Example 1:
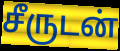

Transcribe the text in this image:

சீருடன்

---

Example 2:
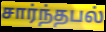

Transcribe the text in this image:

சார்ந்தபல்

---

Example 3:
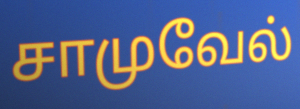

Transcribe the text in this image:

சாமுவேல்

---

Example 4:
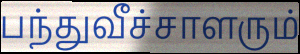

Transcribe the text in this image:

பந்துவீச்சாளரும்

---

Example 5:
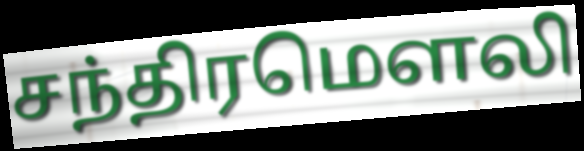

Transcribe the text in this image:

சந்திரமௌலி